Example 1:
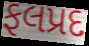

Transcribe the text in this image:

ફલપ્રદ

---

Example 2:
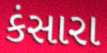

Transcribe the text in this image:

કંસારા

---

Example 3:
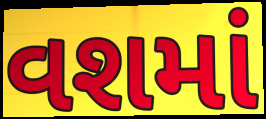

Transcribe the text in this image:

વશમાં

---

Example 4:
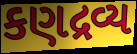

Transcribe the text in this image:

કણદ્રવ્ય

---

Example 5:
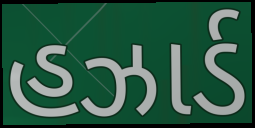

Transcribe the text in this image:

હઝાર્ડ